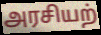
அரசியற்